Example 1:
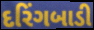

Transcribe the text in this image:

દરિંગબાડી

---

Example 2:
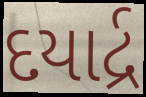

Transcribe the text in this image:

દયાર્દ્ર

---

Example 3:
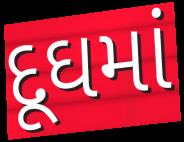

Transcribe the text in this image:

દૂઘમાં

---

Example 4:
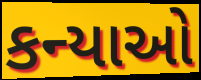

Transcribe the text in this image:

કન્યાઓ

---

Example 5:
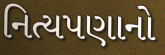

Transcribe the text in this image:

નિત્યપણાનો